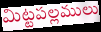
మిట్టపల్లములు